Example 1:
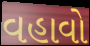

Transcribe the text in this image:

વહાવો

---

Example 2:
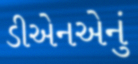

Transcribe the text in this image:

ડીએનએનું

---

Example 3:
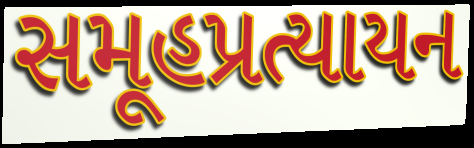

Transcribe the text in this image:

સમૂહપ્રત્યાયન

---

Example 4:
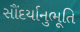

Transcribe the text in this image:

સૌંદર્યાનુભૂતિ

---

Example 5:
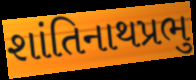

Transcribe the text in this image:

શાંતિનાથપ્રભુ